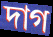
দাগ